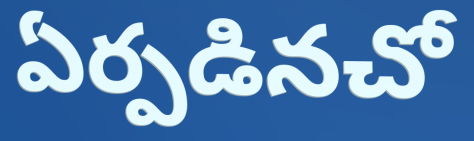
ఏర్పడినచో